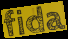
fida